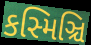
કસ્મિઞ્ચિ